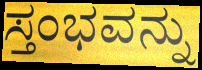
ಸ್ತಂಭವನ್ನು